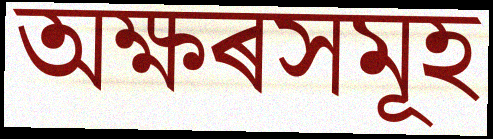
অক্ষৰসমূহ